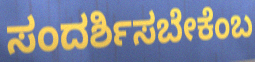
ಸಂದರ್ಶಿಸಬೇಕೆಂಬ